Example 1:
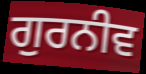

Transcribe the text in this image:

ਗੁਰਨੀਵ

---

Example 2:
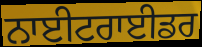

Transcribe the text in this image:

ਨਾਈਟਰਾਈਡਰ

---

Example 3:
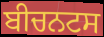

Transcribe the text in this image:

ਬੀਚਨਟਸ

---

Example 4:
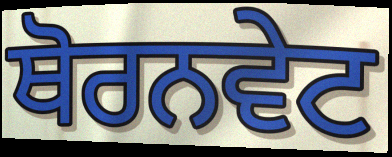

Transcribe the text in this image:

ਥੋਰਨਵੇਟ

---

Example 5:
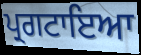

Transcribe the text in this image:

ਪ੍ਰਗਟਾਇਆ